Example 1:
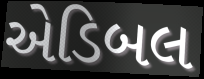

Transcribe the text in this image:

એડિબલ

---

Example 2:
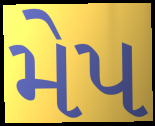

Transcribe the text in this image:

મેપ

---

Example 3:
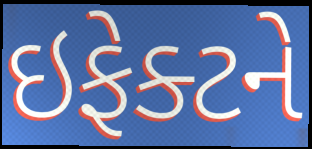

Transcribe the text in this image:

ઇફેક્ટને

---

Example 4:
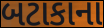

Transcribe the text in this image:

બટાકાના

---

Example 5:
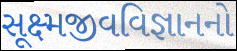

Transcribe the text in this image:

સૂક્ષ્મજીવવિજ્ઞાનનો